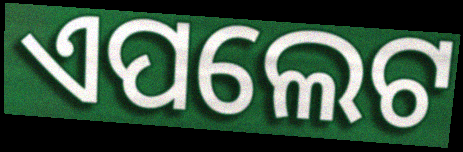
ଏପଲେଟ